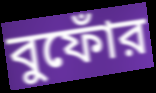
বুফোঁর